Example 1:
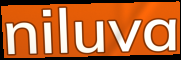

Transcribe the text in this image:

niluva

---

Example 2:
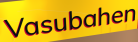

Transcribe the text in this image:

Vasubahen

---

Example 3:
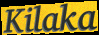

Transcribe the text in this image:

Kilaka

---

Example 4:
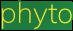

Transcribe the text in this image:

phyto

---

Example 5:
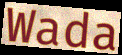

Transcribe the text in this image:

Wada